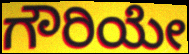
ಗೌರಿಯೇ